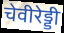
चेवीरेड्डी